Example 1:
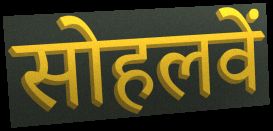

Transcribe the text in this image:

सोहलवें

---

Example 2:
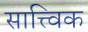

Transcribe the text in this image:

सात्त्विक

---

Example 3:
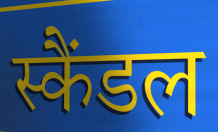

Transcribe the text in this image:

स्कैंडल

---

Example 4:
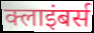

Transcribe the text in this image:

क्लाइंबर्स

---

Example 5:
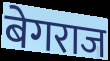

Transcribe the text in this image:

बेगराज